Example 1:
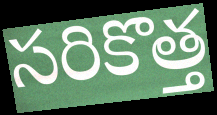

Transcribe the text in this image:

సరికొత్త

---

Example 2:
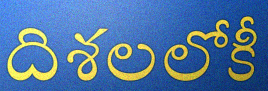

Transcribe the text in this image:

దిశలలోకీ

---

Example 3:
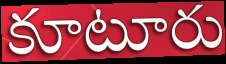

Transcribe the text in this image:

కూటూరు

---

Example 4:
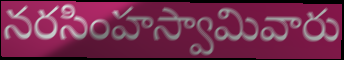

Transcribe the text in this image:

నరసింహస్వామివారు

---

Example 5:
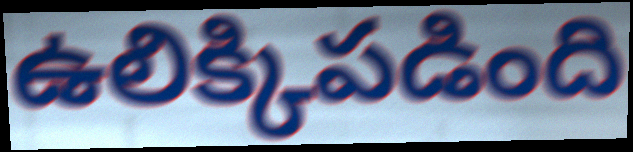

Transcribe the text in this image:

ఉలిక్కిపడింది